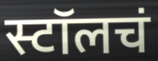
स्टॉलचं